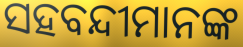
ସହବନ୍ଦୀମାନଙ୍କ